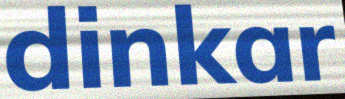
dinkar